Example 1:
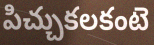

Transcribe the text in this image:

పిచ్చుకలకంటె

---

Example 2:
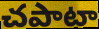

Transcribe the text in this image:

చపాటా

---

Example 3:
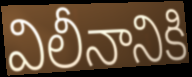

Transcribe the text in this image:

విలీనానికి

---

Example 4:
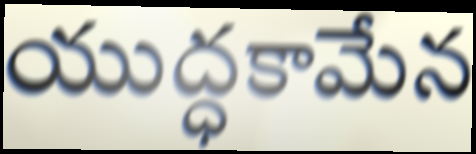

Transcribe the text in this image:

యుద్ధకామేన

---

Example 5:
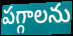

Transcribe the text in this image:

పగ్గాలను